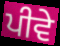
ਪੀਵੇ